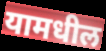
यामधील